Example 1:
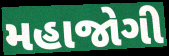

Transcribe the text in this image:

મહાજોગી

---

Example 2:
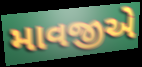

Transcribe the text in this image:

માવજીએ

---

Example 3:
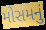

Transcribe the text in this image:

મોસમનું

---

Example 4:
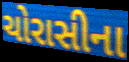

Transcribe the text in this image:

ચોરાસીના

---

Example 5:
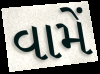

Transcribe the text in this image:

વામેં